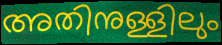
അതിനുള്ളിലും